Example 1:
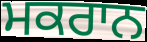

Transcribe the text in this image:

ਮਕਰਾਨ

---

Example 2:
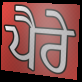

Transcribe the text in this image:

ਪੈਰੇ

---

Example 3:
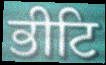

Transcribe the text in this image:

ਭੀਟਿ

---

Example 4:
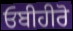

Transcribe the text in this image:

ਓਬੀਹੀਰੋ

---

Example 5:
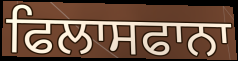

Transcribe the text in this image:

ਫਿਲਾਸਫਾਨਾ